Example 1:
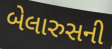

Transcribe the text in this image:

બેલારુસની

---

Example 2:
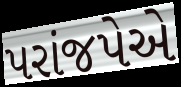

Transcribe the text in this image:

પરાંજપેએ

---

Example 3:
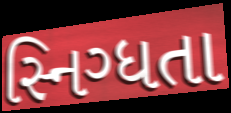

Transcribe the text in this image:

સ્નિગ્ધતા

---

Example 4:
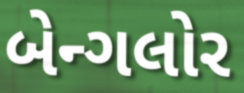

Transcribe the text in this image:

બેન્ગલોર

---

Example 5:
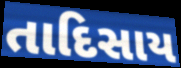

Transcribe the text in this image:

તાદિસાય